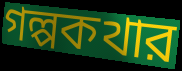
গল্পকথার